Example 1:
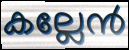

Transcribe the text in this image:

കല്ലേൻ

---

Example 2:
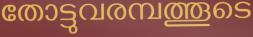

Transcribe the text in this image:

തോട്ടുവരമ്പത്തൂടെ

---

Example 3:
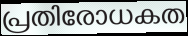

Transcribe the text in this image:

പ്രതിരോധകത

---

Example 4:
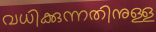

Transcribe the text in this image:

വധിക്കുന്നതിനുള്ള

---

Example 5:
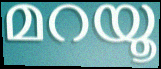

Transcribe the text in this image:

മറയൂ